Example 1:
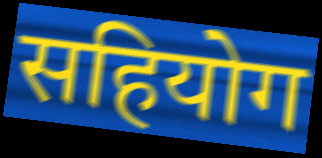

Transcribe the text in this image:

सहियोग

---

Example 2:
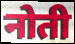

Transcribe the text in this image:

नोती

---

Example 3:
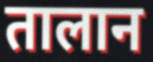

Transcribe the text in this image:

तालान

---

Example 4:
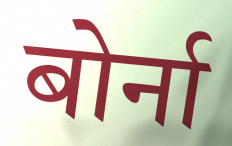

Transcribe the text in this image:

बोर्ना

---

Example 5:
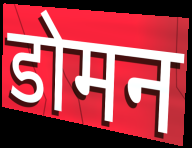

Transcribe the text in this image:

डोमन